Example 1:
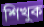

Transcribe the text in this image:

শিখুক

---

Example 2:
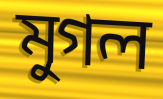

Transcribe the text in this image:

মুগল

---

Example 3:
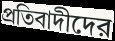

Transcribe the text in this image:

প্রতিবাদীদের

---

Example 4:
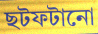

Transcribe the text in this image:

ছটফটানো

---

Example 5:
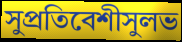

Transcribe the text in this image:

সুপ্রতিবেশীসুলভ